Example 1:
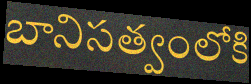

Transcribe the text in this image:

బానిసత్వంలోకి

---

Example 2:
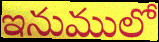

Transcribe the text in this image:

ఇనుములో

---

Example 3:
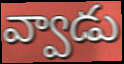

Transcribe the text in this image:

వ్వాడు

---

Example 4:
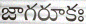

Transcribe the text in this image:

జాగరూకః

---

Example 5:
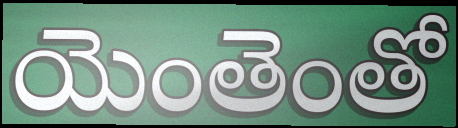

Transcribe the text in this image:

యెంతెంతో